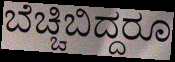
ಬೆಚ್ಚಿಬಿದ್ದರೂ